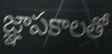
జ్ఞాపకాలతో